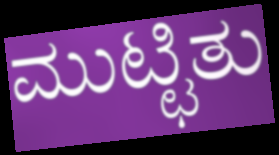
ಮುಟ್ಟಿತು